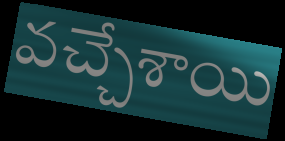
వచ్చేశాయి